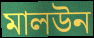
মালউন